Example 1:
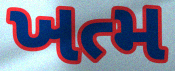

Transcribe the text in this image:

ખત્મ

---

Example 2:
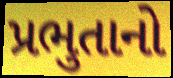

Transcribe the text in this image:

પ્રભુતાનો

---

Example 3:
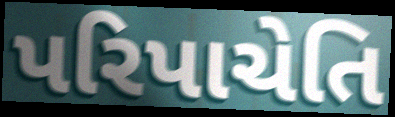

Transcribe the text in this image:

પરિપાચેતિ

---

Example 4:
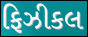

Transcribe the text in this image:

ફિઝીકલ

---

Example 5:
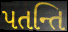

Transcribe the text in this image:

પતન્તિ